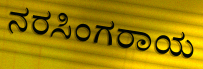
ನರಸಿಂಗರಾಯ